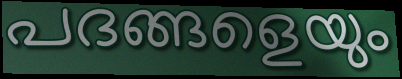
പദങ്ങളെയും